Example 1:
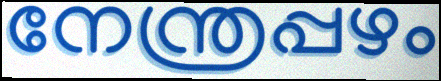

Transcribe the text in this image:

നേന്ത്രപ്പഴം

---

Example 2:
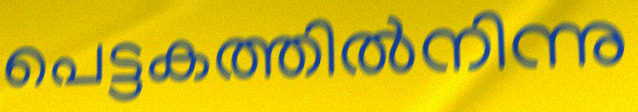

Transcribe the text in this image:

പെട്ടകത്തിൽനിന്നു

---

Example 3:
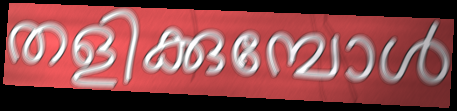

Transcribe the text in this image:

തളിക്കുമ്പോൾ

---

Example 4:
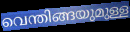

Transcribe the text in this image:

വെന്തിങ്ങയുമുള്ള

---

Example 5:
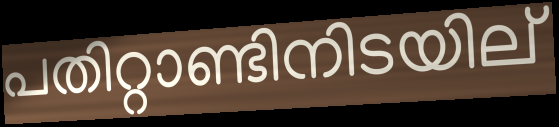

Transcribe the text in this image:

പതിറ്റാണ്ടിനിടയില്